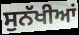
ਸੁਨੱਖੀਆਂ